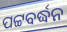
ପଟ୍ଟବର୍ଦ୍ଧନ